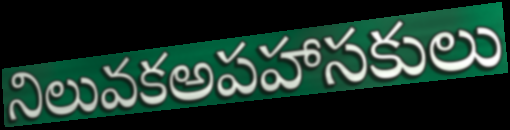
నిలువకఅపహాసకులు